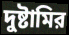
দুষ্টামির